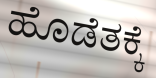
ಹೊಡೆತಕ್ಕೆ